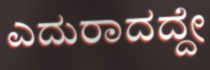
ಎದುರಾದದ್ದೇ